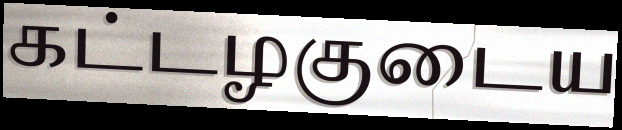
கட்டழகுடைய